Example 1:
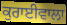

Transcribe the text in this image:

ਕੁਰਾਈਵਾਲਾ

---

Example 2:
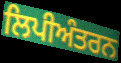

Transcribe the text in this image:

ਲਿਪੀਅੰਤਰਨ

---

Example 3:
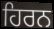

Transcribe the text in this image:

ਹਿਰਨ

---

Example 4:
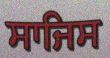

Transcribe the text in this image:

ਸਾਜਿਸ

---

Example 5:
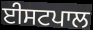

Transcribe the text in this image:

ਈਸਟਪਾਲ